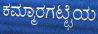
ಕಮ್ಮಾರಗಟ್ಟೆಯ